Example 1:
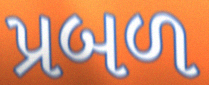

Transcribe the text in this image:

પ્રબળ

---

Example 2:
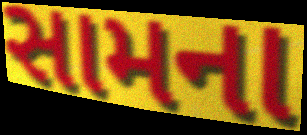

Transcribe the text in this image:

સામના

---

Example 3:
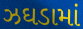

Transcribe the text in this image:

ઝઘડામાં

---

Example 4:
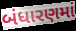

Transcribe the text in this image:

બંધારણમાં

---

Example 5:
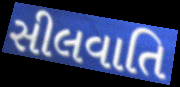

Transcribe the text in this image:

સીલવાતિ